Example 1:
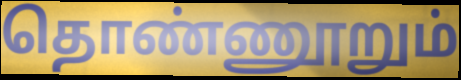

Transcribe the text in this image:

தொண்ணூறும்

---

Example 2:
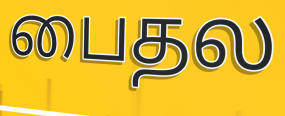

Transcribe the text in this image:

பைதல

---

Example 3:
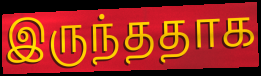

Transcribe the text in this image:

இருந்ததாக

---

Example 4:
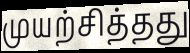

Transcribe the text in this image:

முயற்சித்தது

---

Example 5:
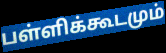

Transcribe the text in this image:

பள்ளிக்கூடமும்